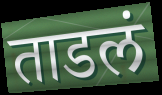
ताडलं